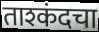
ताश्कंदचा